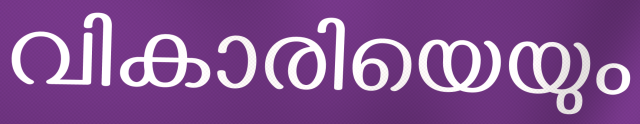
വികാരിയെയും